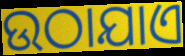
ଉଠାଯାଏ